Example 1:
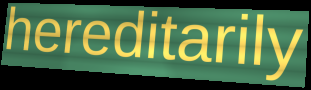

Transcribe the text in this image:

hereditarily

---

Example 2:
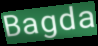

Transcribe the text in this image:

Bagda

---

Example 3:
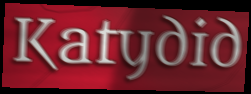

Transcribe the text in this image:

Katydid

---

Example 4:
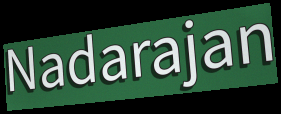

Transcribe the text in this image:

Nadarajan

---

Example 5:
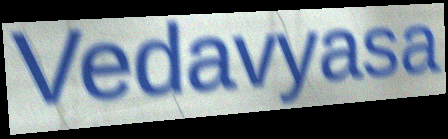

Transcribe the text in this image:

Vedavyasa